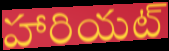
హారియట్